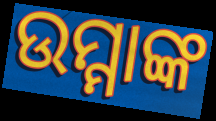
ଉମ୍ମାଙ୍କ